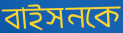
বাইসনকে